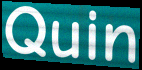
Quin